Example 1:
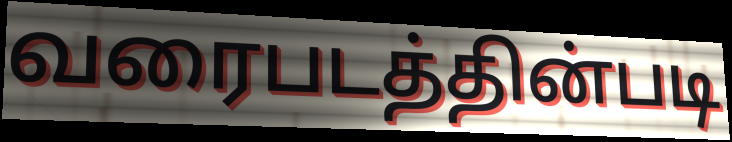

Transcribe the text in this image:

வரைபடத்தின்படி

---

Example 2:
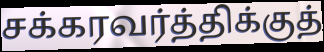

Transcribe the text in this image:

சக்கரவர்த்திக்குத்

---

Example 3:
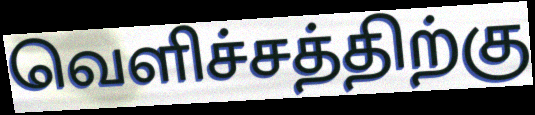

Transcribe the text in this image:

வெளிச்சத்திற்கு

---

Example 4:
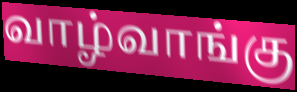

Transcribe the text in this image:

வாழ்வாங்கு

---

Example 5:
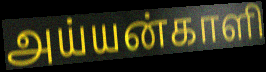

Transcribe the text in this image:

அய்யன்காளி